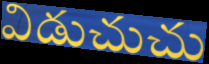
విడుచుచు